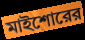
মাইশোরের